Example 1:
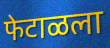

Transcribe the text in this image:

फेटाळला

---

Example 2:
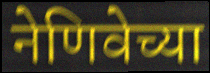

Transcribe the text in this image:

नेणिवेच्या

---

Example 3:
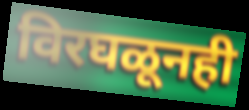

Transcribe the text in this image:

विरघळूनही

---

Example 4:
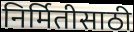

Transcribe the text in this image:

निर्मितीसाठी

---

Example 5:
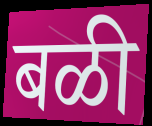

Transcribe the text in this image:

बळी